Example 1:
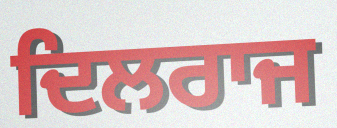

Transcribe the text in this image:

ਦਿਲਰਾਜ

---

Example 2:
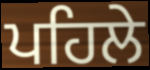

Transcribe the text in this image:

ਪਹਿਲੇ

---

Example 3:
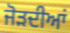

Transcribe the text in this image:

ਜੋੜਦੀਆਂ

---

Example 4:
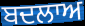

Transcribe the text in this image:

ਬਦਲਾਅ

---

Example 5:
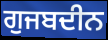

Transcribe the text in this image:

ਗੁਜਬਦੀਨ